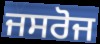
ਜਸਰੋਜ